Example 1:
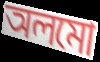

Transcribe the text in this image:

অলমো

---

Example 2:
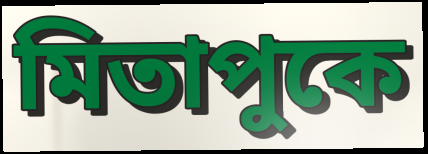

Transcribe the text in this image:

মিতাপুকে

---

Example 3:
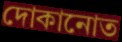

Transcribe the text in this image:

দোকানোত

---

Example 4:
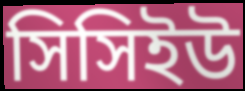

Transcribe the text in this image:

সিসিইউ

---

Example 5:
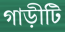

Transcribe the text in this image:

গাড়ীটি